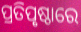
ପ୍ରତିପୃଷ୍ଠାରେ